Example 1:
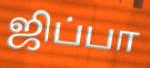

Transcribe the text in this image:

ஜிப்பா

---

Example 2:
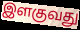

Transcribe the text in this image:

இளகுவது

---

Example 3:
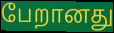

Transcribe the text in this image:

பேறானது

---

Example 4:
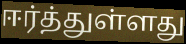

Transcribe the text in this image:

ஈர்த்துள்ளது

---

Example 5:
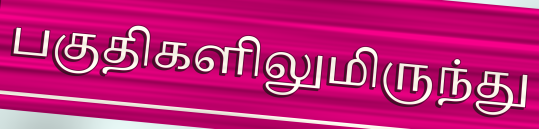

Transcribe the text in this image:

பகுதிகளிலுமிருந்து